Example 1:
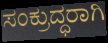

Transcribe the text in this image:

ಸಂಕ್ರುದ್ಧರಾಗಿ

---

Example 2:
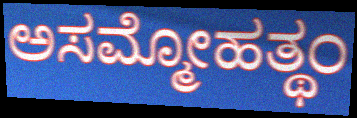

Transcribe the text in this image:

ಅಸಮ್ಮೋಹತ್ಥಂ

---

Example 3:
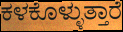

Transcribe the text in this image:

ಕಳಕೊಳ್ಳುತ್ತಾರೆ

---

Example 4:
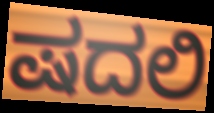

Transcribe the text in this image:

ಷದಲಿ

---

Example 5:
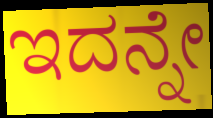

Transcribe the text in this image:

ಇದನ್ನೇ